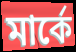
মাৰ্কে